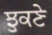
ਝੁਕਣੇ